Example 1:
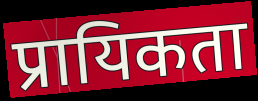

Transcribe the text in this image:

प्रायिकता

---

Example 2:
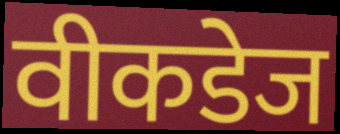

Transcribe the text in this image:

वीकडेज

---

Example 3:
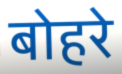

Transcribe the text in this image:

बोहरे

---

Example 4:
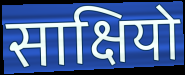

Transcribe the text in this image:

साक्षियो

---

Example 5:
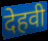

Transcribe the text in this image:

देहवी